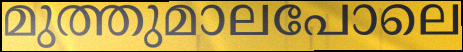
മുത്തുമാലപോലെ